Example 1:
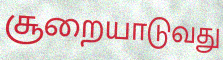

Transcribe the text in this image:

சூறையாடுவது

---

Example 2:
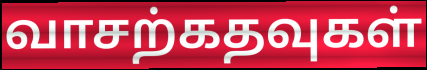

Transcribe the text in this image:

வாசற்கதவுகள்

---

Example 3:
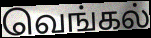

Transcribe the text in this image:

வெங்கல்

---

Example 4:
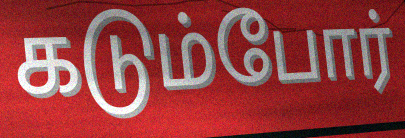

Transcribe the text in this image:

கடும்போர்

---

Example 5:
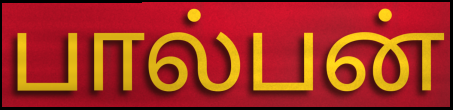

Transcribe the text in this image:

பால்பன்